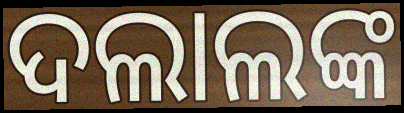
ଦଲାଲଙ୍କ